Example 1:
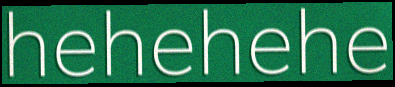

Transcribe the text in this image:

hehehehe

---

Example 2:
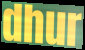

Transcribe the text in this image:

dhur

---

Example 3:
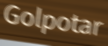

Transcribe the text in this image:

Golpotar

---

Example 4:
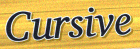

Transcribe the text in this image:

Cursive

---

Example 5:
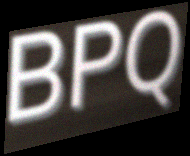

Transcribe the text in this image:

BPQ